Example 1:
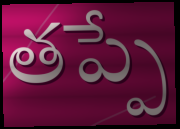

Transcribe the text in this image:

తప్పే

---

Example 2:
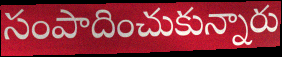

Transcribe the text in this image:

సంపాదించుకున్నారు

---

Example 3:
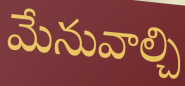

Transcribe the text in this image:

మేనువాల్చి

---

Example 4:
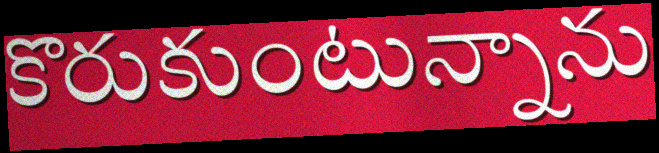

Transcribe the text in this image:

కొరుకుంటున్నాను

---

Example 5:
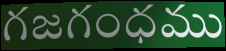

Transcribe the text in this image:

గజగంధము